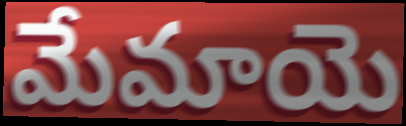
మేమాయె